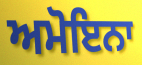
ਅਮੋਇਨਾ